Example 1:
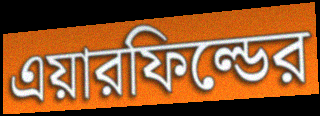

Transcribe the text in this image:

এয়ারফিল্ডের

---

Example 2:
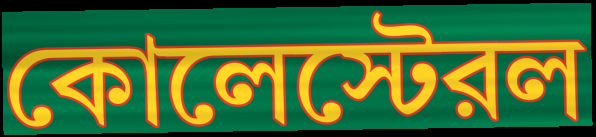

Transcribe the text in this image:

কোলেস্টেরল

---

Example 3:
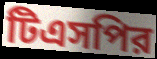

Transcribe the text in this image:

টিএসপির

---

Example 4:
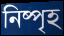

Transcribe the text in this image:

নিষ্পৃহ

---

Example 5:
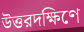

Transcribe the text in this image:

উত্তরদক্ষিণে